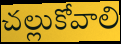
చల్లుకోవాలి